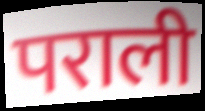
पराली